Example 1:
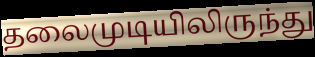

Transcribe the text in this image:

தலைமுடியிலிருந்து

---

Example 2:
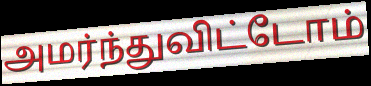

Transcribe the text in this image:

அமர்ந்துவிட்டோம்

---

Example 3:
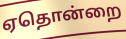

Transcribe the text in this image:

ஏதொன்றை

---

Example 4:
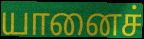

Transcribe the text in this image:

யானைச்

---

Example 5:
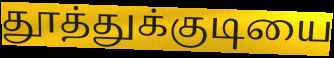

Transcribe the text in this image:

தூத்துக்குடியை